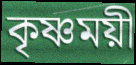
কৃষ্ণময়ী